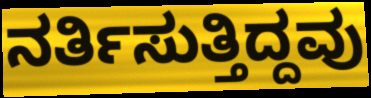
ನರ್ತಿಸುತ್ತಿದ್ದವು